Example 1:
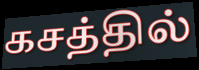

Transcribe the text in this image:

கசத்தில்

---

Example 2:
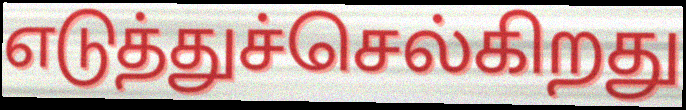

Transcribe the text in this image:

எடுத்துச்செல்கிறது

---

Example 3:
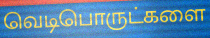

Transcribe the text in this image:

வெடிபொருட்களை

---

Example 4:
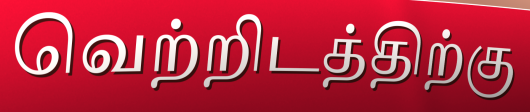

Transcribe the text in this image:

வெற்றிடத்திற்கு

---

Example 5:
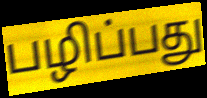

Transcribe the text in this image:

பழிப்பது